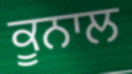
ਕੂਨਾਲ